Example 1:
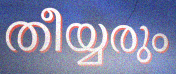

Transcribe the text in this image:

തീയ്യരും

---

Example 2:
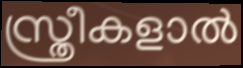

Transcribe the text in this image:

സ്ത്രീകളാൽ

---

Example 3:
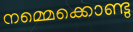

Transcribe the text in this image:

നമ്മെക്കൊണ്ടു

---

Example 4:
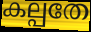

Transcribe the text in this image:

കല്പതേ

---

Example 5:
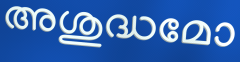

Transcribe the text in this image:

അശുദ്ധമോ